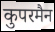
कुपरमैन